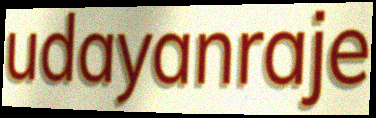
udayanraje